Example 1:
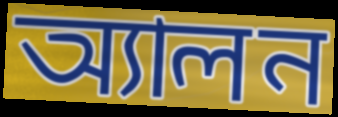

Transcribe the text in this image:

অ্যালন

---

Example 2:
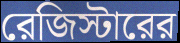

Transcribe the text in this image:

রেজিস্টারের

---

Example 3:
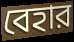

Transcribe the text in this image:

বেহার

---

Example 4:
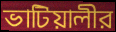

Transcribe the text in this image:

ভাটিয়ালীর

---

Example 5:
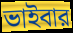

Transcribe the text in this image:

ভাইবার